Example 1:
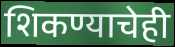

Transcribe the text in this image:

शिकण्याचेही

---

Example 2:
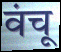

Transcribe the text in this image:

वंचू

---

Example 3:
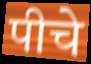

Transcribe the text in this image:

पीचे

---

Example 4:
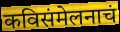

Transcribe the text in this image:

कविसंमेलनाचं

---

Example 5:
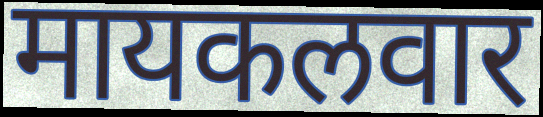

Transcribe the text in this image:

मायकलवार